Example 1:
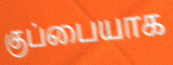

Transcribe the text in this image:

குப்பையாக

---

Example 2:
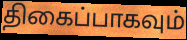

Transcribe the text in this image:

திகைப்பாகவும்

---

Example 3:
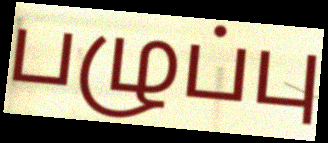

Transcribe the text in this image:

பழுப்பு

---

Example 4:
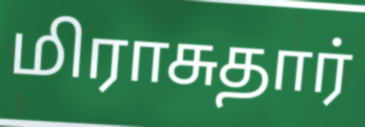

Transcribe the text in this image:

மிராசுதார்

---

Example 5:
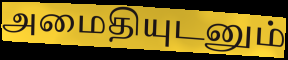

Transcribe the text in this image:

அமைதியுடனும்